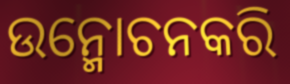
ଉନ୍ମୋଚନକରି